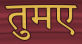
तुमए